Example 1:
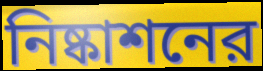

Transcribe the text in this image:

নিষ্কাশনের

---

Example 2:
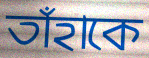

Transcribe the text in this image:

তাঁহাকে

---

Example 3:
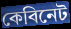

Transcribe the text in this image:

কেবিনেট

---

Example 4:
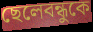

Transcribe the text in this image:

ছেলেবন্ধুকে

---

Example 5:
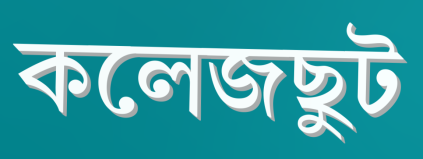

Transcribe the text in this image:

কলেজছুট